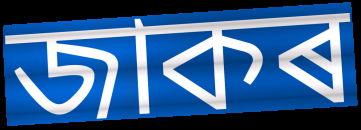
জাকৰ